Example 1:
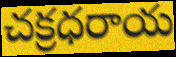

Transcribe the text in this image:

చక్రధరాయ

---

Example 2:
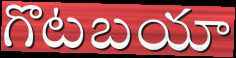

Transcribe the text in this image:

గొటబయా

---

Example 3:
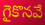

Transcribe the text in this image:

గైకొనవే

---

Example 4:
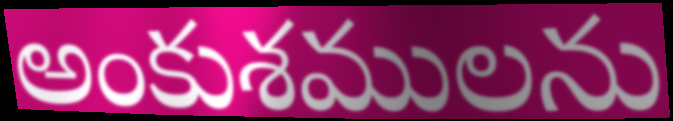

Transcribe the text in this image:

అంకుశములను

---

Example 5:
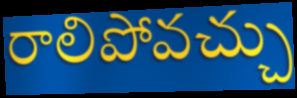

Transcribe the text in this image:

రాలిపోవచ్చు